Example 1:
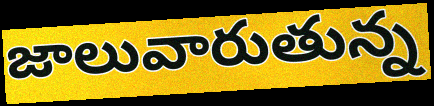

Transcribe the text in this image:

జాలువారుతున్న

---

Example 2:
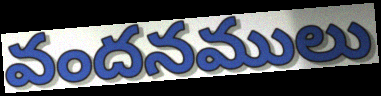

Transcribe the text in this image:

వందనములు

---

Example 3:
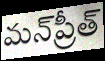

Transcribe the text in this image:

మన్‌ప్రీత్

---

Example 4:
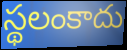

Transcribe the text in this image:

స్థలంకాదు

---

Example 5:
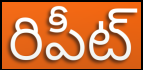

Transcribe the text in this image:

రిపీట్